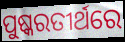
ପୁଷ୍କରତୀର୍ଥରେ